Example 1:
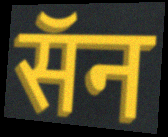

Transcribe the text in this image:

सॅन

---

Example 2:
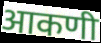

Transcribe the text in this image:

आकणी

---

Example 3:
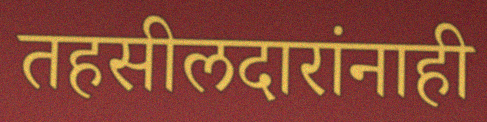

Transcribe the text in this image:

तहसीलदारांनाही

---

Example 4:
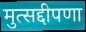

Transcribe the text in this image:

मुत्सद्दीपणा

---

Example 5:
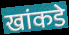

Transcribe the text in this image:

खांकडे